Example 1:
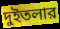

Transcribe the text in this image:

দুইতলার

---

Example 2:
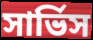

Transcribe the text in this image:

সার্ভিস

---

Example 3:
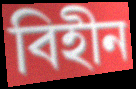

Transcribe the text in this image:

বিহীন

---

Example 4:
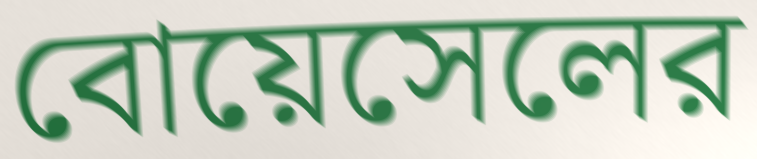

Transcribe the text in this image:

বোয়েসেলের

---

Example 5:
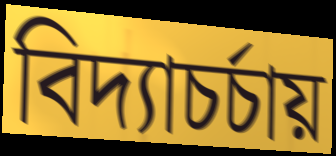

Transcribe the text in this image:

বিদ্যাচর্চায়